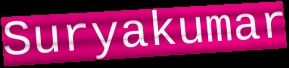
Suryakumar